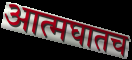
आत्मघातच